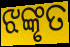
ଝଙ୍କୃତ